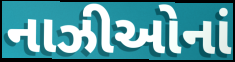
નાઝીઓનાં